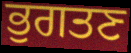
ਭੁਗਤਣ